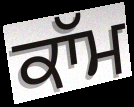
ਕਾੱਮ